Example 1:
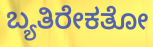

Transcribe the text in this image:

ಬ್ಯತಿರೇಕತೋ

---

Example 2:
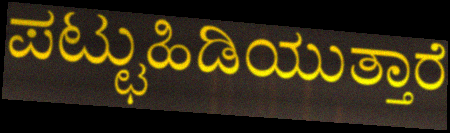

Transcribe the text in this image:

ಪಟ್ಟುಹಿಡಿಯುತ್ತಾರೆ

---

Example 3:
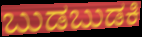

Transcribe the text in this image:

ಬುಡಬುಡಕಿ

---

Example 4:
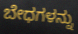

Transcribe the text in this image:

ಬೇಧಗಳನ್ನು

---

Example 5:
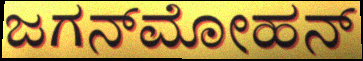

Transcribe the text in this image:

ಜಗನ್‌ಮೋಹನ್